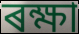
ৰক্ষা